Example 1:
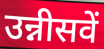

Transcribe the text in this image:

उन्नीसवें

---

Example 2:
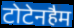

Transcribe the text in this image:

टोटेनहैम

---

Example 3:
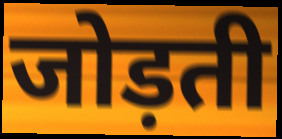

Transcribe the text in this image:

जोड़ती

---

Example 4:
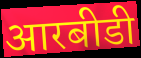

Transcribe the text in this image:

आरबीडी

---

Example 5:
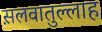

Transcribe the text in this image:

स़लवातुल्लाह